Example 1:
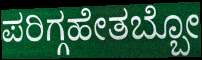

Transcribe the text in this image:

ಪರಿಗ್ಗಹೇತಬ್ಬೋ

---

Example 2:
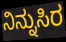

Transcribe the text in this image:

ನಿನ್ನುಸಿರ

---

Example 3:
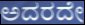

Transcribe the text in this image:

ಅದರದೇ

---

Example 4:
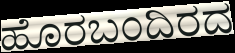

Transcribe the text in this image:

ಹೊರಬಂದಿರದ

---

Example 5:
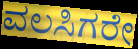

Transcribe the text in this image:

ವಲಸಿಗರೇ